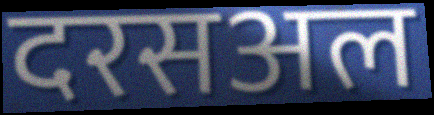
दरसअल